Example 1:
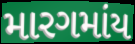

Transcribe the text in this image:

મારગમાંય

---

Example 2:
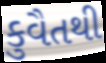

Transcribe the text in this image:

કુવૈતથી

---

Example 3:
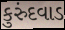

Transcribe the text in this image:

કુરુંદવાડ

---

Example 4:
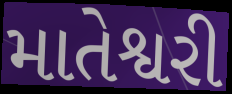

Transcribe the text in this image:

માતેશ્વરી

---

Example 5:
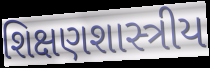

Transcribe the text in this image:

શિક્ષણશાસ્ત્રીય